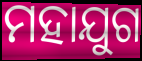
ମହାଯୁଗ